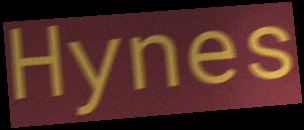
Hynes